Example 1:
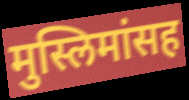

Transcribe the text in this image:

मुस्लिमांसह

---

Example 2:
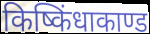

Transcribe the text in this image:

किष्किंधाकाण्ड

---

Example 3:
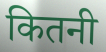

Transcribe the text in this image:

कितनी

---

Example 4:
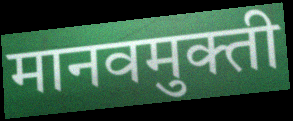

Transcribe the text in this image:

मानवमुक्ती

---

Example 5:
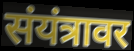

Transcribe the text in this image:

संयंत्रावर